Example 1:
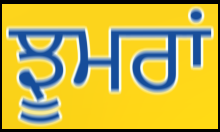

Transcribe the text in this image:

ਝੂਮਰਾਂ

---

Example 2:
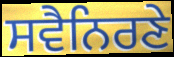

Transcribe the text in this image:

ਸਵੈਨਿਰਣੇ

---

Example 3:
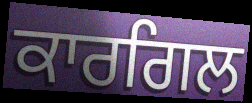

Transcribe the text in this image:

ਕਾਰਗਿਲ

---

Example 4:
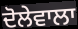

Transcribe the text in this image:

ਦੋਲੇਵਾਲਾ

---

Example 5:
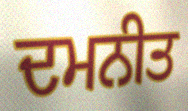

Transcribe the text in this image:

ਦਮਨੀਤ